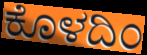
ಕೊಳದಿಂ